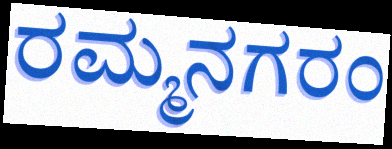
ರಮ್ಮನಗರಂ